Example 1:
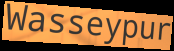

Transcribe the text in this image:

Wasseypur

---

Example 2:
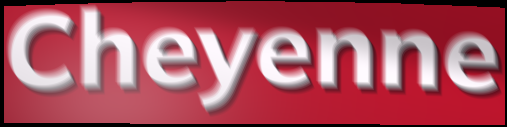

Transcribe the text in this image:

Cheyenne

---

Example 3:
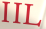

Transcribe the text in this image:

IIL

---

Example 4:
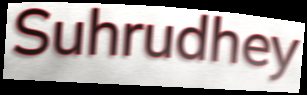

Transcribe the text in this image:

Suhrudhey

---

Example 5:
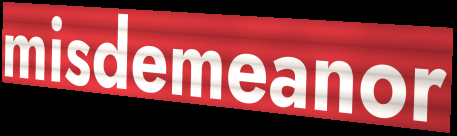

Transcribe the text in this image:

misdemeanor